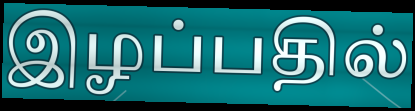
இழப்பதில்